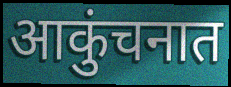
आकुंचनात